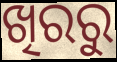
ଖିରରୁ